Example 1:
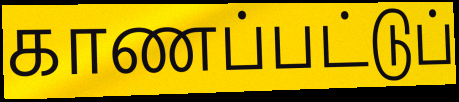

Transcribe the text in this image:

காணப்பட்டுப்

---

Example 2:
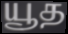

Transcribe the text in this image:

யூத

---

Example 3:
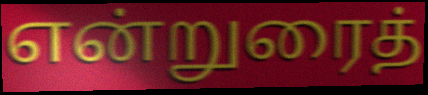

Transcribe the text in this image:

என்றுரைத்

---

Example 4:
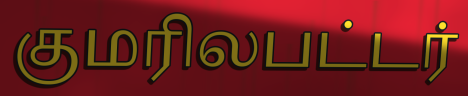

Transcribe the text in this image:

குமரிலபட்டர்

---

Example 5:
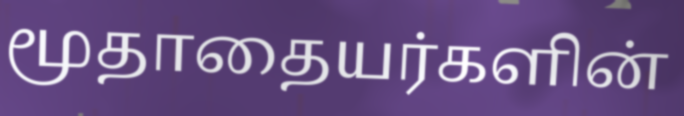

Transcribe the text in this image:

மூதாதையர்களின்